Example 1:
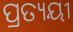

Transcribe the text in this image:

ପ୍ରତ୍ୟୟୀ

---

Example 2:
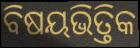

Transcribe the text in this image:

ବିଷୟଭିତ୍ତିକ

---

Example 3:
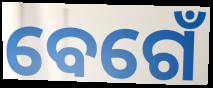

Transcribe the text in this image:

ବେଗେଁ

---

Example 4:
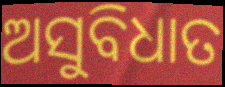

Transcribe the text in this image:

ଅସୁବିଧାତ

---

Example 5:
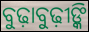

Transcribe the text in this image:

ବୁଢ଼ାବୁଢ଼ୀଙ୍କି